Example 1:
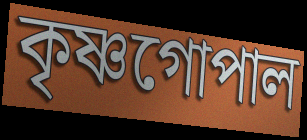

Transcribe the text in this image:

কৃষ্ণগোপাল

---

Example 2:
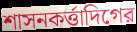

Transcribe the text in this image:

শাসনকর্ত্তাদিগের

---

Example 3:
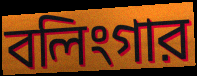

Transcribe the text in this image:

বলিংগার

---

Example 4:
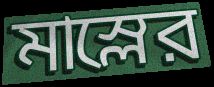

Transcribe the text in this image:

মাস্লের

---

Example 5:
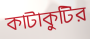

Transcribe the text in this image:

কাটাকুটির